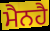
ਮੈਨਹੈ